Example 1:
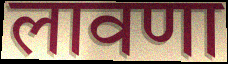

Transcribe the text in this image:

लावणा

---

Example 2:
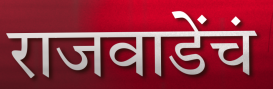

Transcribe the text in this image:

राजवाडेंचं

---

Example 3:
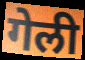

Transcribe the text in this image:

गेली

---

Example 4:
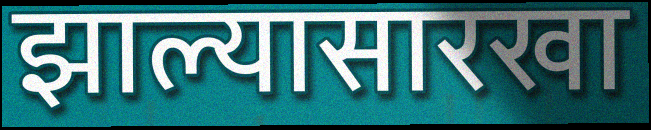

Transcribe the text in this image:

झाल्यासारखा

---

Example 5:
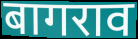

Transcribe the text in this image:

बागराव